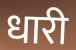
धारी